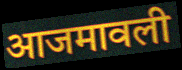
आजमावली